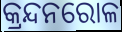
କ୍ରନ୍ଦନରୋଳ